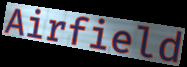
Airfield